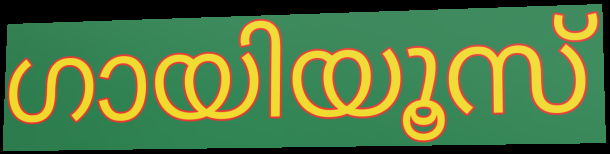
ഗായിയൂസ്